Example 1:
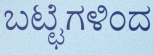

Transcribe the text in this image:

ಬಟ್ಟೆಗಳಿಂದ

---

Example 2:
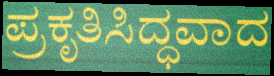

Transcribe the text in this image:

ಪ್ರಕೃತಿಸಿದ್ಧವಾದ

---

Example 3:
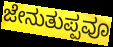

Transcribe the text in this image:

ಜೇನುತುಪ್ಪವೂ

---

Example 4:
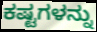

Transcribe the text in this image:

ಕಷ್ಟಗಳನ್ನು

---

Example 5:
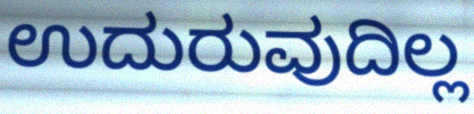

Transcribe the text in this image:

ಉದುರುವುದಿಲ್ಲ